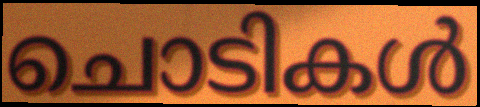
ചൊടികൾ